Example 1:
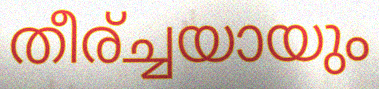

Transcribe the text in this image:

തീര്ച്ചയായും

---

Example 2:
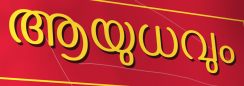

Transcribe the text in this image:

ആയുധവും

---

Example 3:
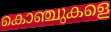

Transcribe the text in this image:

കൊഞ്ചുകളെ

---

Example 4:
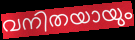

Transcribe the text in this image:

വനിതയായും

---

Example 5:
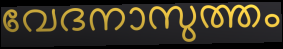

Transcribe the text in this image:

വേദനാസുത്തം